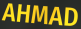
AHMAD